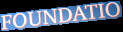
FOUNDATIO